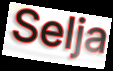
Selja